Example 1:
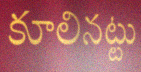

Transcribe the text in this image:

కూలినట్టు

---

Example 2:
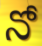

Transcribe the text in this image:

నో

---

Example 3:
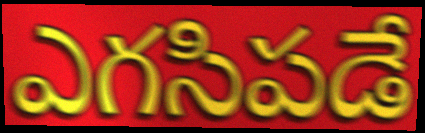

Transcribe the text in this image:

ఎగసిపడే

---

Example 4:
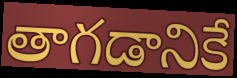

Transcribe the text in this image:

తాగడానికే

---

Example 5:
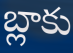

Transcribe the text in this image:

బ్లాకు